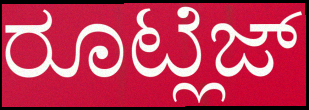
ರೂಟ್ಲೆಜ್